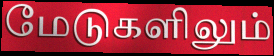
மேடுகளிலும்